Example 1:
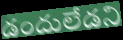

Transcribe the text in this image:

డందులేడని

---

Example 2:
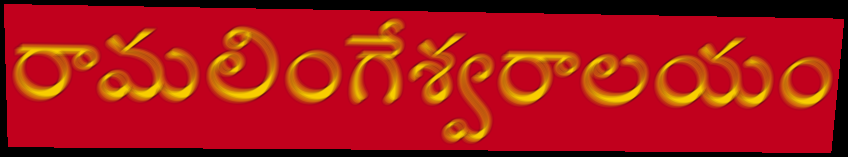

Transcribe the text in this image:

రామలింగేశ్వరాలయం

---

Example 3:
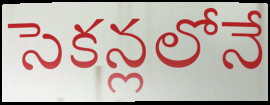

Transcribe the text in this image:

సెకన్లలోనే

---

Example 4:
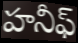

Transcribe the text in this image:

హనీఫ్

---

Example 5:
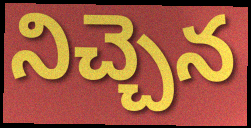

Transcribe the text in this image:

నిచ్చెన